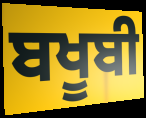
ਬਖੂਬੀ